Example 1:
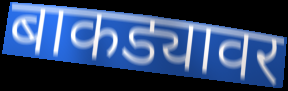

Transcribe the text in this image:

बाकड्यावर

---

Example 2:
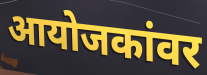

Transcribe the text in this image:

आयोजकांवर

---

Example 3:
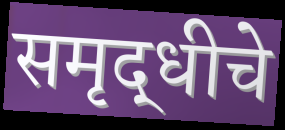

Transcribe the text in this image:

समृद्धीचे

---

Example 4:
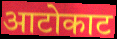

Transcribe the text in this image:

आटोकाट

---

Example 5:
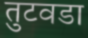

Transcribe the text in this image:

तुटवडा